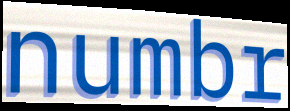
numbr